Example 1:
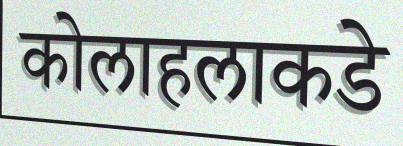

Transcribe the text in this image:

कोलाहलाकडे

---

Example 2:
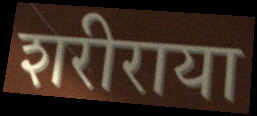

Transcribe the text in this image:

शरीराया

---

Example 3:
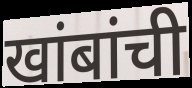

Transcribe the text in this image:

खांबांची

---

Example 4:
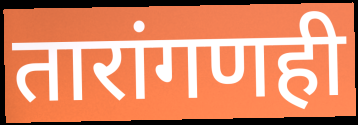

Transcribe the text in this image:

तारांगणही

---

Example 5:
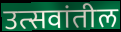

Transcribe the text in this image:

उत्सवांतील